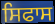
ਸਿਫਾਸ